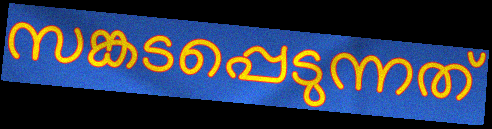
സങ്കടപ്പെടുന്നത്